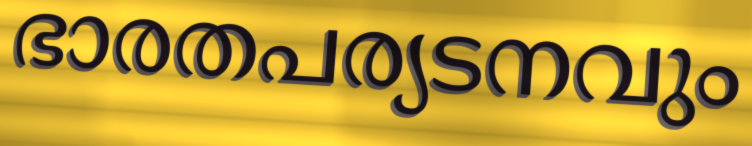
ഭാരതപര്യടനവും